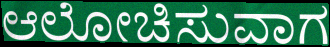
ಆಲೋಚಿಸುವಾಗ